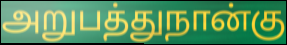
அறுபத்துநான்கு